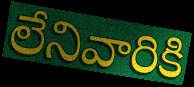
లేనివారికి